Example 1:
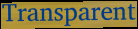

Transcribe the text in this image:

Transparent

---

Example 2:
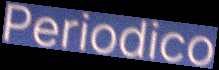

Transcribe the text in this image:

Periodico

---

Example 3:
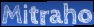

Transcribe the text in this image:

Mitraho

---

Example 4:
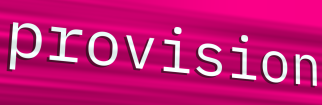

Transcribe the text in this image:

provision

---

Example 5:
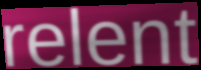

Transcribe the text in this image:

relent